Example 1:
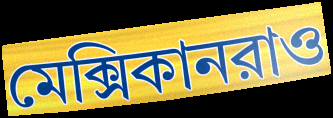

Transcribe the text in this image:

মেক্সিকানরাও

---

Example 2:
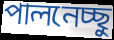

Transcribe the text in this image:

পালনেচ্ছু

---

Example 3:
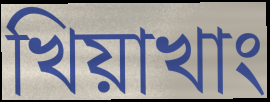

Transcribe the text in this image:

খিয়াখাং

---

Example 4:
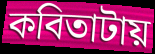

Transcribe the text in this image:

কবিতাটায়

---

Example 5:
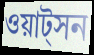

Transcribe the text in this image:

ওয়াট্সন